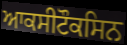
ਆਕਸੀਟੌਕਸਿਨ